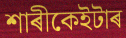
শাৰীকেইটাৰ